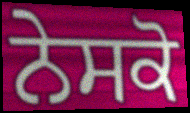
ਨੇਸਕੋ